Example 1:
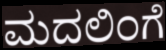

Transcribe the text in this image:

ಮದಲಿಂಗೆ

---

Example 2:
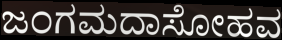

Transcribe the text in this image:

ಜಂಗಮದಾಸೋಹವ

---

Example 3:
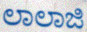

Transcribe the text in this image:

ಲಾಲಾಜಿ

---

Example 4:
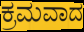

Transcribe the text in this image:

ಕ್ರಮವಾದ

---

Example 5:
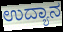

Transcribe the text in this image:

ಉದ್ಯಾನ